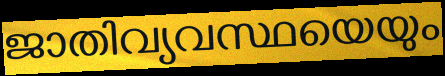
ജാതിവ്യവസ്ഥയെയും